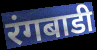
रंगबाडी